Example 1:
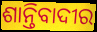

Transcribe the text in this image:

ଶାନ୍ତିବାଦୀର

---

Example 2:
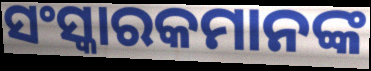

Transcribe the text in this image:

ସଂସ୍କାରକମାନଙ୍କ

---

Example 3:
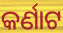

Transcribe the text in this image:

କର୍ଣାଟ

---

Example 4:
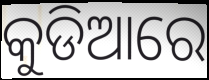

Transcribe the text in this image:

କୁଡିଆରେ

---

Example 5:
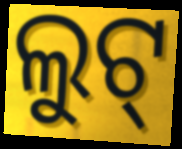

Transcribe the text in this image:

ଲୁଟ୍